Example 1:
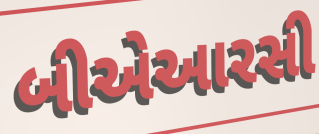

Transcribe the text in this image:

બીએઆરસી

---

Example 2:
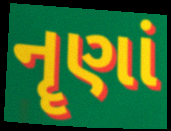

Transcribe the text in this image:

નૄણાં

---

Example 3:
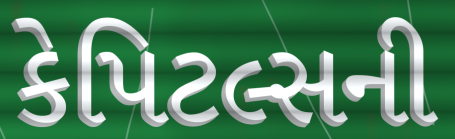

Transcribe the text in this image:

કેપિટલ્સની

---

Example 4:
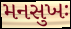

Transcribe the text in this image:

મનસુખઃ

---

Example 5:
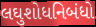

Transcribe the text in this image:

લઘુશોધનિબંધો